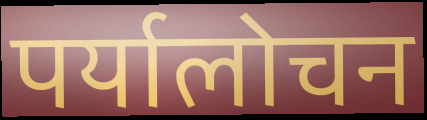
पर्यालोचन